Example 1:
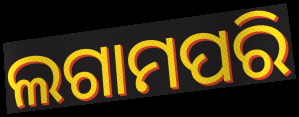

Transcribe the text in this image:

ଲଗାମପରି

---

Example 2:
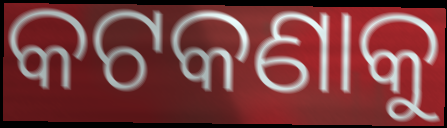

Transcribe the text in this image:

କଟକଣାକୁ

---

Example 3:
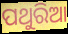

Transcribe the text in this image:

ପଥୁରିଆ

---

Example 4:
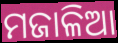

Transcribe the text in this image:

ମଜାଳିଆ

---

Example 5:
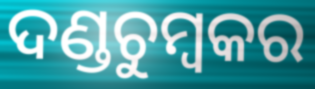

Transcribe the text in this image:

ଦଣ୍ଡଚୁମ୍ବକର